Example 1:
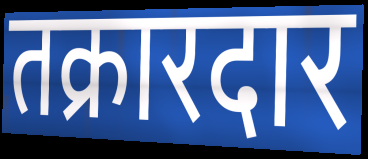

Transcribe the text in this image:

तक्रारदार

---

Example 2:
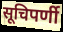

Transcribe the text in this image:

सूचिपर्णी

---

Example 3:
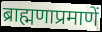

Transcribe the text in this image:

ब्राह्मणाप्रमाणें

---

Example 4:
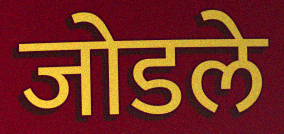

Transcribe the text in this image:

जोडले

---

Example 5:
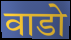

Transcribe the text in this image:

वाडो